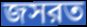
জসরত